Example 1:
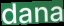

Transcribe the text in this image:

dana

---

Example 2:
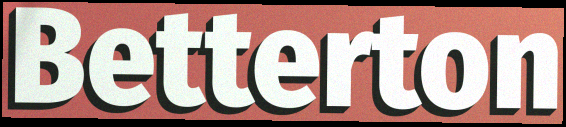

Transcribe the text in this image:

Betterton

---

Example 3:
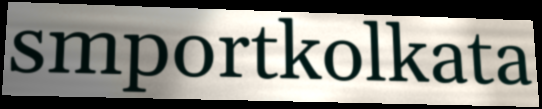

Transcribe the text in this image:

smportkolkata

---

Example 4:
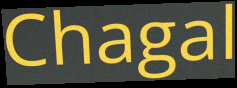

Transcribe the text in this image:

Chagal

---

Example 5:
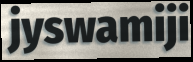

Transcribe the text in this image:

jyswamiji